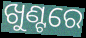
ଖୁଣ୍ଟରେ